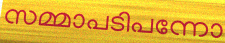
സമ്മാപടിപന്നോ